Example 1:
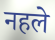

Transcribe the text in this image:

नहले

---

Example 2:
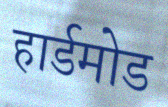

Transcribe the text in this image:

हार्डमोड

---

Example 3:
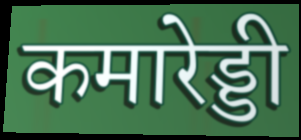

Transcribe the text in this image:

कमारेड्डी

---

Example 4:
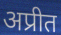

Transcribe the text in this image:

अप्रीत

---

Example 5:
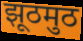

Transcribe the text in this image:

झूठमुठ